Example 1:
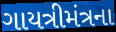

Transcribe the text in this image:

ગાયત્રીમંત્રના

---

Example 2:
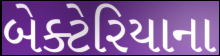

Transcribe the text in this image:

બેક્ટેરિયાના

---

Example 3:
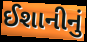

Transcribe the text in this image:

ઈશાનીનું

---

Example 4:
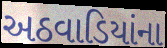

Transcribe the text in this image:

અઠવાડિયાંના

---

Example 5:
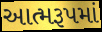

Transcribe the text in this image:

આત્મરૂપમાં